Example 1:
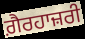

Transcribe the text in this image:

ਗ਼ੈਰਹਾਜ਼ਰੀ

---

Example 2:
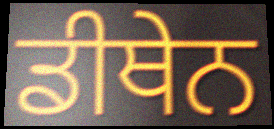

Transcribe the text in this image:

ਡੀਥੇਨ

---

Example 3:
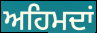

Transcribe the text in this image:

ਅਹਿਮਦਾਂ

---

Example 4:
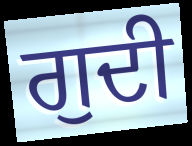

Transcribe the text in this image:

ਗੁਦੀ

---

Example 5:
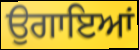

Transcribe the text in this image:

ਉਗਾਇਆਂ